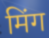
मिंग